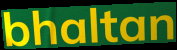
bhaltan